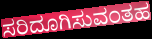
ಸರಿದೂಗಿಸುವಂತಹ